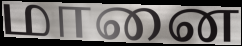
மானை